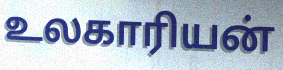
உலகாரியன்